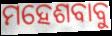
ମହେଶବାବୁ